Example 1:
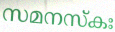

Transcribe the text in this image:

സമനസ്കഃ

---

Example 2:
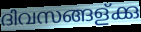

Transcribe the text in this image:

ദിവസങ്ങള്ക്കു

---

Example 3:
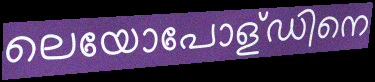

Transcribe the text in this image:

ലെയോപോള്ഡിനെ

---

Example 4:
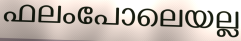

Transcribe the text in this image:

ഫലംപോലെയല്ല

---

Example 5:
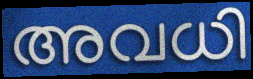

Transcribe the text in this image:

അവധി